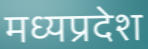
मध्‍यप्रदेश